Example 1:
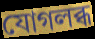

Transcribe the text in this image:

যোগলব্ধ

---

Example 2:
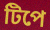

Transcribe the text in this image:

টিপে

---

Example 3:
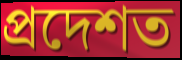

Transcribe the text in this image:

প্ৰদেশত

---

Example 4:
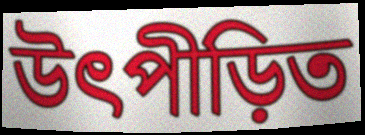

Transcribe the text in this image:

উৎপীড়িত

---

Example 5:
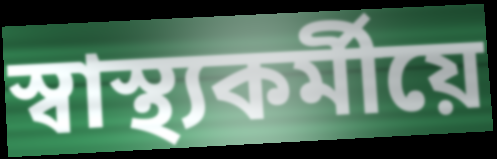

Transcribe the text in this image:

স্বাস্থ্যকৰ্মীয়ে